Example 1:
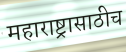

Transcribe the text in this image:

महाराष्ट्रासाठीच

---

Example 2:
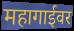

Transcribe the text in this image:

महागाईवर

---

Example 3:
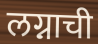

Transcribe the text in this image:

लग्नाची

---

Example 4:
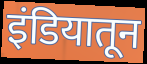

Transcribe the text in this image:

इंडियातून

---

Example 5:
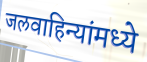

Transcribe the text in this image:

जलवाहिन्यांमध्ये